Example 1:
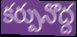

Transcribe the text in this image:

కర్పునొద్ద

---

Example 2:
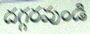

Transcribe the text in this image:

దగ్గరవుండి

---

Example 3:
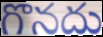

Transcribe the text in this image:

గొనదు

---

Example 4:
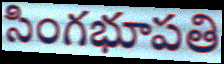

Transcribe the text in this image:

సింగభూపతి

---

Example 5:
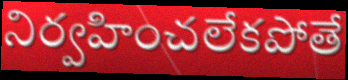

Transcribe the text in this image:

నిర్వహించలేకపోతే